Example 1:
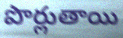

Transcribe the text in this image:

పొర్లుతాయి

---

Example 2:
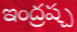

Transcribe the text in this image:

ఇంద్రష్చ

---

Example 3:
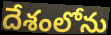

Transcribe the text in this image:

దేశంలోను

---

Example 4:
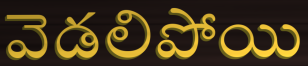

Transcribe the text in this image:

వెడలిపోయి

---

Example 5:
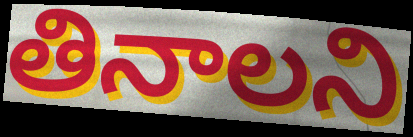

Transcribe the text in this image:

తినాలని